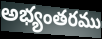
అభ్యంతరము